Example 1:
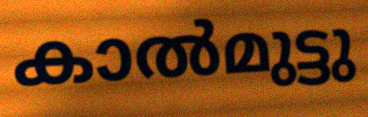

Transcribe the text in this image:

കാൽമുട്ടു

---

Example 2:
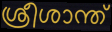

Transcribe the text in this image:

ശ്രീശാന്ത്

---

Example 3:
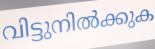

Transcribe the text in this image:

വിട്ടുനിൽക്കുക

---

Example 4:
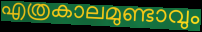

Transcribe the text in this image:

എത്രകാലമുണ്ടാവും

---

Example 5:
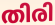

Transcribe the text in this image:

തിരി